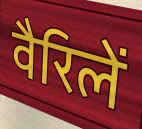
वैरिलें